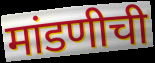
मांडणीची